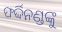
ଫର୍ଦ୍ଦିନଣ୍ଡଙ୍କୁ